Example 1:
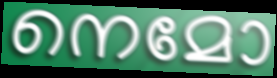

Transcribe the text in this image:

നെമോ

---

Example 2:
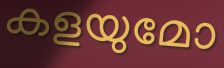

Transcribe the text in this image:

കളയുമോ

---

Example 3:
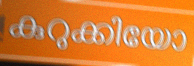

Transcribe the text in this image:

കുറുക്കിയോ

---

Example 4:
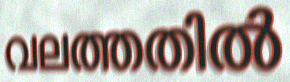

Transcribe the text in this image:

വലത്തതിൽ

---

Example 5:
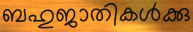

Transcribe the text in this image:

ബഹുജാതികൾക്കു